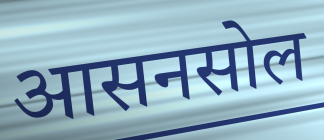
आसनसोल